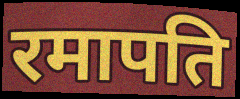
रमापति